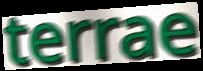
terrae